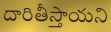
దారితీస్తాయని